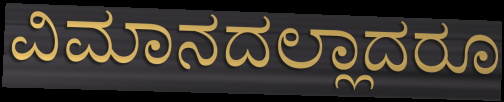
ವಿಮಾನದಲ್ಲಾದರೂ